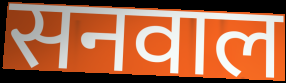
सनवाल